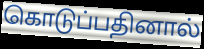
கொடுப்பதினால்